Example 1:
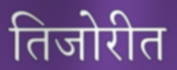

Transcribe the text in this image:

तिजोरीत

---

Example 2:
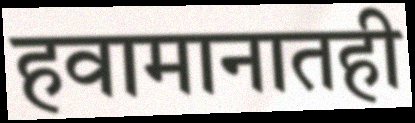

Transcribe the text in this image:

हवामानातही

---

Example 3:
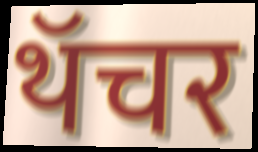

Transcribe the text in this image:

थॅचर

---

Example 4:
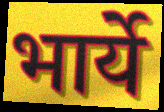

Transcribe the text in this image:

भार्ये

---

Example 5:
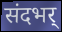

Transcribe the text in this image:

संदभर्